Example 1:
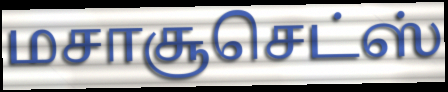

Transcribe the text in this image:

மசாசூசெட்ஸ்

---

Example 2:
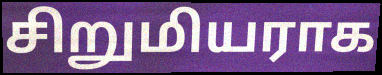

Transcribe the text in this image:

சிறுமியராக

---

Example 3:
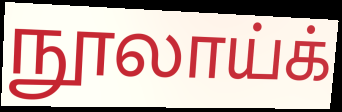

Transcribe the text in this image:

நூலாய்க்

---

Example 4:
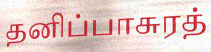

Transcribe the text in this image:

தனிப்பாசுரத்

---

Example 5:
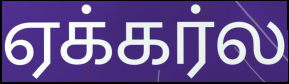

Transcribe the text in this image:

ஏக்கர்ல